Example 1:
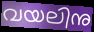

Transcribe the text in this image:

വയലിനു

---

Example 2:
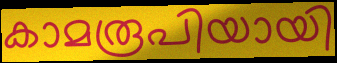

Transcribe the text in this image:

കാമരൂപിയായി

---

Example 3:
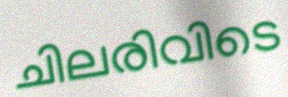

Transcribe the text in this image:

ചിലരിവിടെ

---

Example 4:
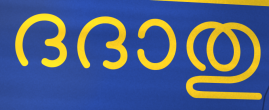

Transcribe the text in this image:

ദദാതു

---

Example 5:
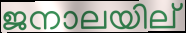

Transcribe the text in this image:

ജനാലയില്